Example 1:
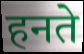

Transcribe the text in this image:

हनते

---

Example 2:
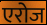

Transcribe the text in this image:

एरोज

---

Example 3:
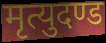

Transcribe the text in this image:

मृत्युदण्ड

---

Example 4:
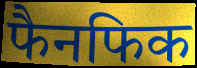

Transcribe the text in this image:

फैनफिक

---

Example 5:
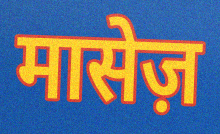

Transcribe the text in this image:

मासेज़